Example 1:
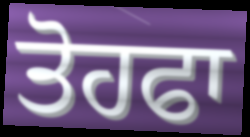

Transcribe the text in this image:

ਤੋਹਫਾ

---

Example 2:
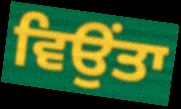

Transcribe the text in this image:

ਵਿਉਂਤਾ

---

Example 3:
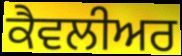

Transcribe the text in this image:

ਕੈਵਲੀਅਰ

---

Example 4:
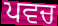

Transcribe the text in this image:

ਪਵਚ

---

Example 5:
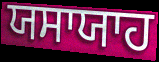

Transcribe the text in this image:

ਯਸਾਯਾਹ